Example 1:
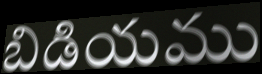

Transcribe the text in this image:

బిడియము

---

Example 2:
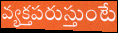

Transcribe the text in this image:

వ్యక్తపరుస్తుంటే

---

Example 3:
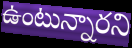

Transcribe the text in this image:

ఉంటున్నారని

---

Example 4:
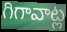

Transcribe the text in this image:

గిగావాట్ల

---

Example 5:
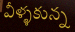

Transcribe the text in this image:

వీళ్ళకున్న